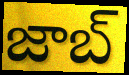
జాబ్